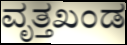
ವೃತ್ತಖಂಡ